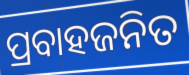
ପ୍ରବାହଜନିତ